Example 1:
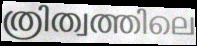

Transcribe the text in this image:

ത്രിത്വത്തിലെ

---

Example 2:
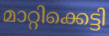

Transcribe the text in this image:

മാറ്റിക്കെട്ടി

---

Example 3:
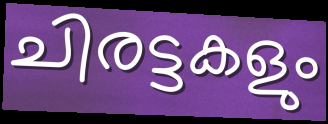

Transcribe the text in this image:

ചിരട്ടകളും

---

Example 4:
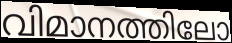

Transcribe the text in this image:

വിമാനത്തിലോ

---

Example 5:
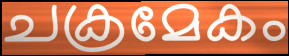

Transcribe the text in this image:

ചക്രമേകം